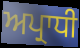
ਅਪ੍ਰਾਧੀ